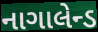
નાગાલેન્ડ